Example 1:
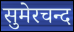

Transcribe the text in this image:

सुमेरचन्द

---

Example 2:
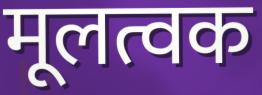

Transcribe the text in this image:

मूलत्वक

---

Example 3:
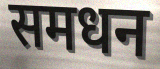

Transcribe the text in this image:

समधन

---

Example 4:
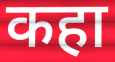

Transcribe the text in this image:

कहा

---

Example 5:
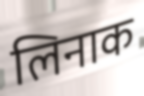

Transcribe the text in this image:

लिनाक